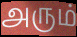
அரும்